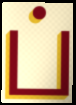
ப்